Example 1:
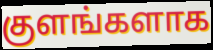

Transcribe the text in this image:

குளங்களாக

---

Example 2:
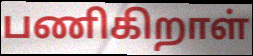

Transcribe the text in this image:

பணிகிறாள்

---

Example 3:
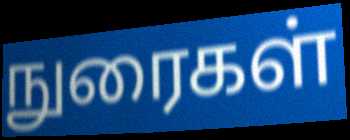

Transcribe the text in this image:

நுரைகள்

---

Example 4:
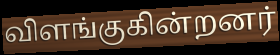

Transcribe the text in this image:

விளங்குகின்றனர்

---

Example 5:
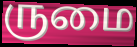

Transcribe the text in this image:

ருமை